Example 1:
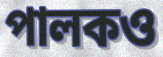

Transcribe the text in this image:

পালকও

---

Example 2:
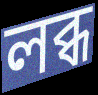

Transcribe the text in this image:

লব্ধ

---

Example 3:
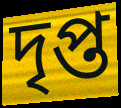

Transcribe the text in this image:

দৃপ্ত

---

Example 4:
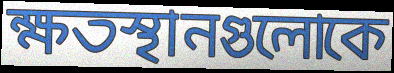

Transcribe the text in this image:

ক্ষতস্থানগুলোকে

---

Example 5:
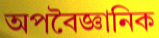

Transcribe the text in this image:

অপবৈজ্ঞানিক